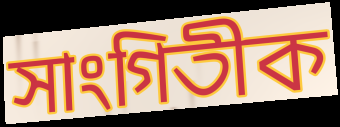
সাংগিতীক